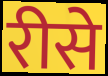
रीसे